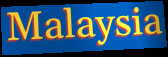
Malaysia